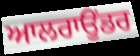
ਆਲਰਾਉਂਡਰ